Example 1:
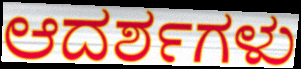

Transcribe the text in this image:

ಆದರ್ಶಗಳು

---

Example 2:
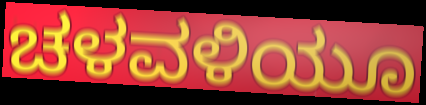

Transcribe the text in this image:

ಚಳವಳಿಯೂ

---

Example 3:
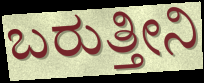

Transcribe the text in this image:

ಬರುತ್ತೀನಿ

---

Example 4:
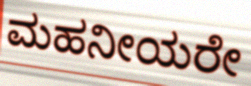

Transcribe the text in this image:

ಮಹನೀಯರೇ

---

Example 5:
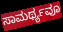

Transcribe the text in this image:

ಸಾಮರ್ಥ್ಯವೂ